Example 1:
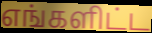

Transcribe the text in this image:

எங்களிட்ட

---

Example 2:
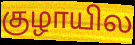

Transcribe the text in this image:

குழாயில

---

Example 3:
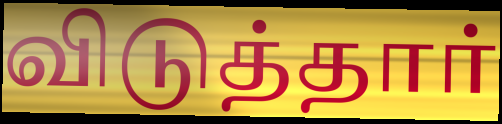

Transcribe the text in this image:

விடுத்தார்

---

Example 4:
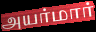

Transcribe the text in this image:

அயர்மார்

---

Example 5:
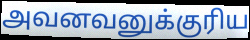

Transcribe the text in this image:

அவனவனுக்குரிய